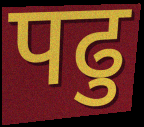
पढु